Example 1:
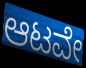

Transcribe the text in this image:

ಆಟವೇ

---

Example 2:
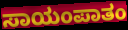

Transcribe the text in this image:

ಸಾಯಂಪಾತಂ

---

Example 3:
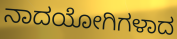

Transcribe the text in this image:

ನಾದಯೋಗಿಗಳಾದ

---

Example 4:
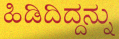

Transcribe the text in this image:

ಹಿಡಿದಿದ್ದನ್ನು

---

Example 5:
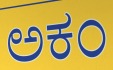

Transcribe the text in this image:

ಅಕಂ